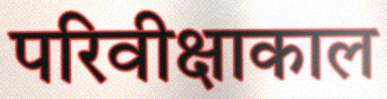
परिवीक्षाकाल